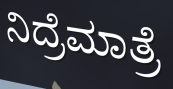
ನಿದ್ರೆಮಾತ್ರೆ